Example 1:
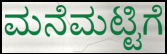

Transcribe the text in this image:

ಮನೆಮಟ್ಟಿಗೆ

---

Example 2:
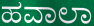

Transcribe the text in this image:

ಹವಾಲಾ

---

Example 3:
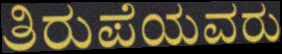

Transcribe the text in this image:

ತಿರುಪೆಯವರು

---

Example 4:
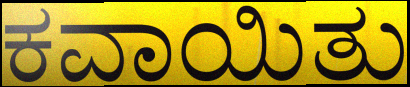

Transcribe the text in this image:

ಕವಾಯಿತು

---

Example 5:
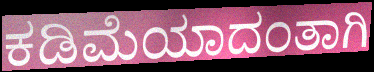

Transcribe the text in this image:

ಕಡಿಮೆಯಾದಂತಾಗಿ